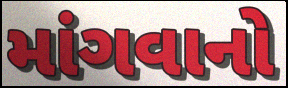
માંગવાનો